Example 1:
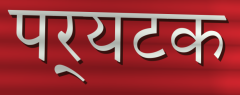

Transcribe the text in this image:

पर्यटक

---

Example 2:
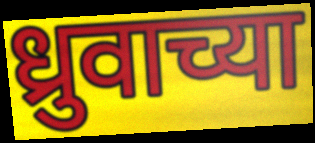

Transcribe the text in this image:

ध्रुवाच्या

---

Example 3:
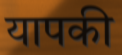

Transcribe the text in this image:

यापकी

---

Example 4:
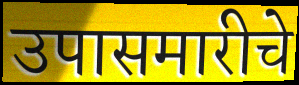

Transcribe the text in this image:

उपासमारीचे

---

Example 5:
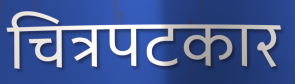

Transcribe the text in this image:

चित्रपटकार